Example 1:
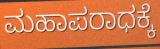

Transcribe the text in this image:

ಮಹಾಪರಾಧಕ್ಕೆ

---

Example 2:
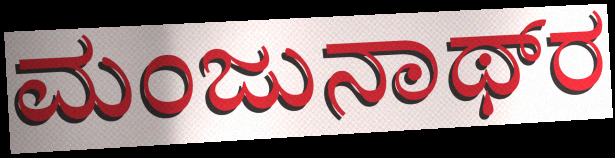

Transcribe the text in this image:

ಮಂಜುನಾಥ್‌ರ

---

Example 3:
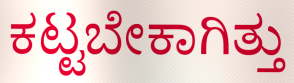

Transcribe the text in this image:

ಕಟ್ಟಬೇಕಾಗಿತ್ತು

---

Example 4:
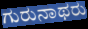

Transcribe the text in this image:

ಗುರುನಾಥರು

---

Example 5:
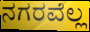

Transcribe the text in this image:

ನಗರವೆಲ್ಲ